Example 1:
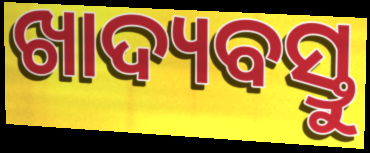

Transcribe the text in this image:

ଖାଦ୍ୟବସ୍ତୁ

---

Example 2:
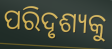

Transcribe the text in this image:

ପରିଦୃଶ୍ୟକୁ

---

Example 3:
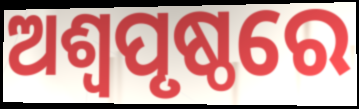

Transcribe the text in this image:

ଅଶ୍ଵପୃଷ୍ଠରେ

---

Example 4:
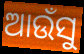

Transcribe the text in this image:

ଆଉଁସୁ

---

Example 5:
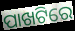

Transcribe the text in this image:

ପାଖଟିରେ